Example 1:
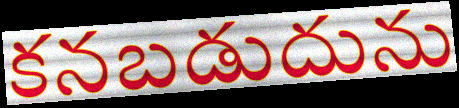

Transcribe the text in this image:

కనబడుదును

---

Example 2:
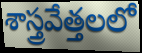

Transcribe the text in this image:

శాస్త్రవేత్తలలో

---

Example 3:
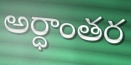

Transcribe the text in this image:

అర్ధాంతర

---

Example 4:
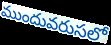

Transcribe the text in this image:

ముందువరుసలో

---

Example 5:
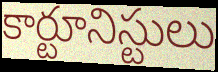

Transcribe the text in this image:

కార్టూనిస్టులు